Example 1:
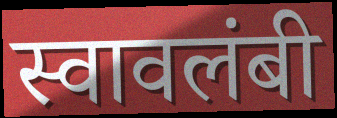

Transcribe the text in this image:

स्वावलंबी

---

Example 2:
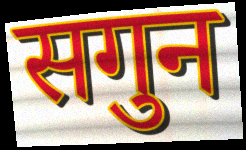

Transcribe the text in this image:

सगुन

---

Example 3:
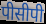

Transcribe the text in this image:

पीसीपी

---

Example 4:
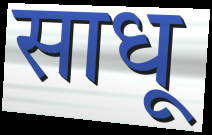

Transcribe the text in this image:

साधू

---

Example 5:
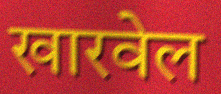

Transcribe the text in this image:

खारवेल